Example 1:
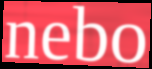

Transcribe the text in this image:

nebo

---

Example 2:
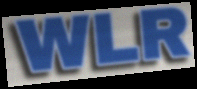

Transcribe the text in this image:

WLR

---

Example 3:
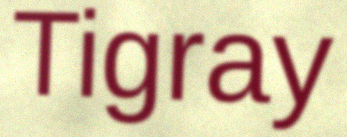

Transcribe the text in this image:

Tigray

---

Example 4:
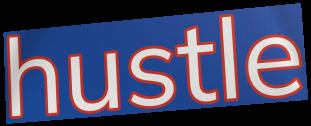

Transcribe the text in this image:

hustle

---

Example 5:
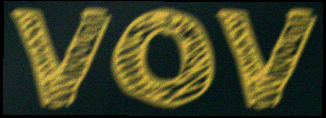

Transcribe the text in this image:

vov